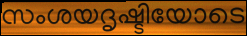
സംശയദൃഷ്ടിയോടെ